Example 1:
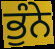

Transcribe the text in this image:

ਭੁੰਨੇ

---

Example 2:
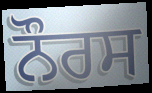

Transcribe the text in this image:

ਨੌਰਸ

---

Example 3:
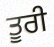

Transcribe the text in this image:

ਤੂਰੀ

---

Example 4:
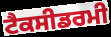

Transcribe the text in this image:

ਟੈਕਸੀਡਰਮੀ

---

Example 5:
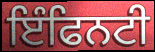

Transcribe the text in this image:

ਇੰਫਿਨਟੀ